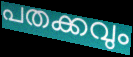
പതക്കവും